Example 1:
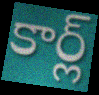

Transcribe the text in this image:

కార్ల్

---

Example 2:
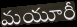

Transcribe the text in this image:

మయూరీ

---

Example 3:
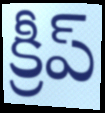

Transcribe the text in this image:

క్రీప్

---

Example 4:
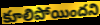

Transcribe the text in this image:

కూలిపోయిందని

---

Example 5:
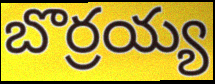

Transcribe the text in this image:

బొర్రయ్య